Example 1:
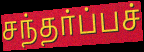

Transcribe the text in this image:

சந்தர்ப்பச்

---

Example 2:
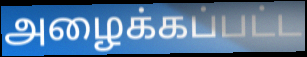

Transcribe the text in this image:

அழைக்கப்பட்ட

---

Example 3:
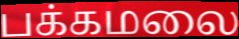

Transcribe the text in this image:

பக்கமலை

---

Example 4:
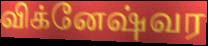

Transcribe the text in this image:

விக்னேஷ்வர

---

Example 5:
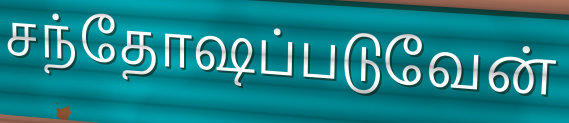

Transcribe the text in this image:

சந்தோஷப்படுவேன்